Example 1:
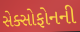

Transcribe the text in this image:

સેક્સોફોનની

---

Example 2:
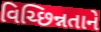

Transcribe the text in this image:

વિચ્છિન્નતાને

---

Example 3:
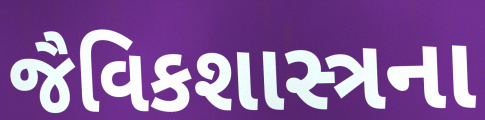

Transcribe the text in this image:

જૈવિકશાસ્ત્રના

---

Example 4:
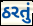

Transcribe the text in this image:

ઠરતું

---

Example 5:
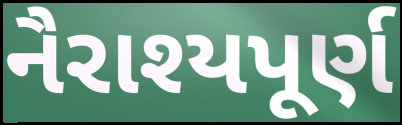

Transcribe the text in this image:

નૈરાશ્યપૂર્ણ